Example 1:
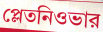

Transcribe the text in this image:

প্লেতনিওভার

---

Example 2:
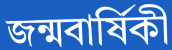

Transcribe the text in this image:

জন্মবার্ষিকী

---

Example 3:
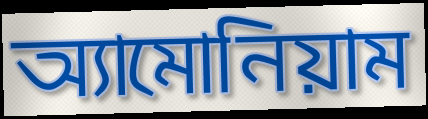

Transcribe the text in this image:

অ্যামোনিয়াম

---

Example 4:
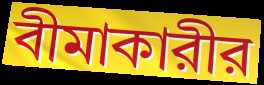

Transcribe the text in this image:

বীমাকারীর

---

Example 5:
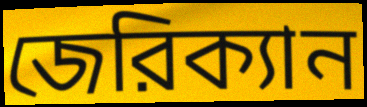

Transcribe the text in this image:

জেরিক্যান